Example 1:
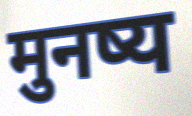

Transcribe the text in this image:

मुनष्य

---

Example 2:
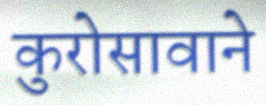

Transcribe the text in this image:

कुरोसावाने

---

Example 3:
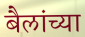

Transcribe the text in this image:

बैलांच्या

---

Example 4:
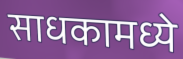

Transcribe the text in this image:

साधकामध्ये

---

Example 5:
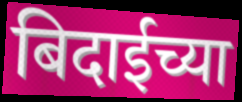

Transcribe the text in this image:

बिदाईच्या